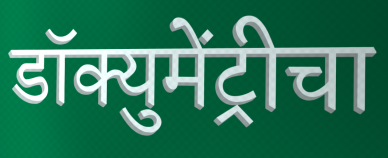
डॉक्युमेंट्रीचा